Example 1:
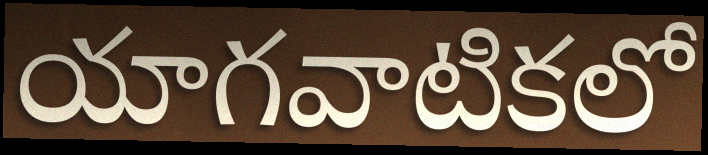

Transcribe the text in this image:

యాగవాటికలో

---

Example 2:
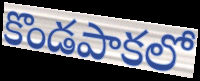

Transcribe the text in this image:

కొండపాకలో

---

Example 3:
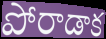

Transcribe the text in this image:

పోరాడాక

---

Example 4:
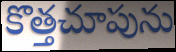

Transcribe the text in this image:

కొత్తచూపును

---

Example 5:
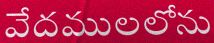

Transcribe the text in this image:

వేదములలోను